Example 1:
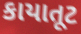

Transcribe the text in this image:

કાયાતૂટ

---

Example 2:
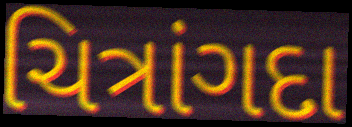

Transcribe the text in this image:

ચિત્રાંગદા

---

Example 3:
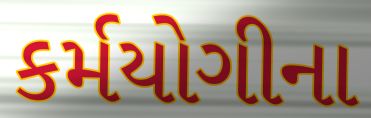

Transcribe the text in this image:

કર્મયોગીના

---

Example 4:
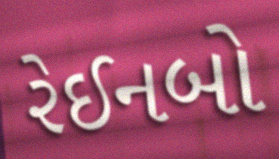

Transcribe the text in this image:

રેઈનબો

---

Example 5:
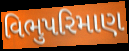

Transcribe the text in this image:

વિભુપરિમાણ